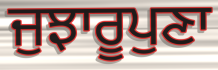
ਜੁਝਾਰੂਪੁਣਾ